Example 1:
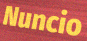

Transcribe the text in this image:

Nuncio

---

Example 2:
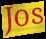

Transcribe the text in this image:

Jos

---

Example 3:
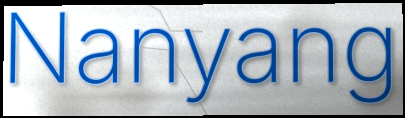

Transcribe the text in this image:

Nanyang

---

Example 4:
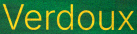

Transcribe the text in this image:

Verdoux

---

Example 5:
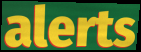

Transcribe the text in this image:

alerts